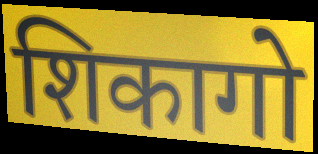
शिकागो